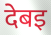
देबइ